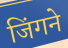
जिंगने